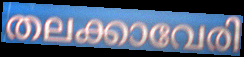
തലക്കാവേരി